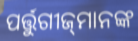
ପର୍ତ୍ତୁଗୀଜ୍‌ମାନଙ୍କ